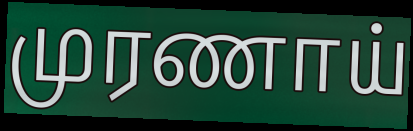
முரணாய்